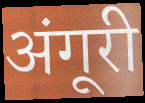
अंगूरी